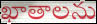
ఖాతాలను